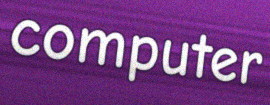
computer